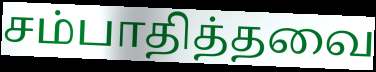
சம்பாதித்தவை